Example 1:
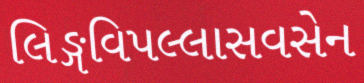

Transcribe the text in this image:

લિઙ્ગવિપલ્લાસવસેન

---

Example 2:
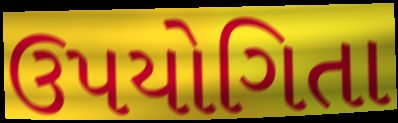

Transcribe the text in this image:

ઉપયોગિતા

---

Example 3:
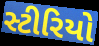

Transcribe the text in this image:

સ્ટીરિયો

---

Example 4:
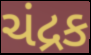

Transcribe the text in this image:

ચંદ્રક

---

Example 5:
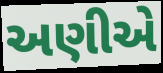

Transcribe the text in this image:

અણીએ